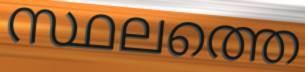
സ്ഥലത്തെ